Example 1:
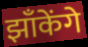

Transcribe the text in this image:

झाँकेंगे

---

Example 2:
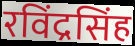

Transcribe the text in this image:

रविंद्रसिंह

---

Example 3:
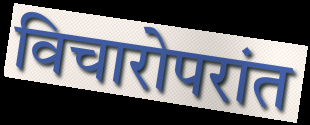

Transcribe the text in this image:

विचारोपरांत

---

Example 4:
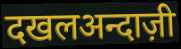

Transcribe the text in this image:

दखलअन्दाज़ी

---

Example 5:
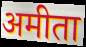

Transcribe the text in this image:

अमीता